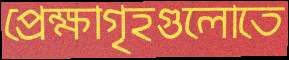
প্রেক্ষাগৃহগুলোতে